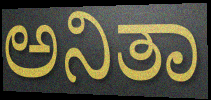
ಅನಿತಾ